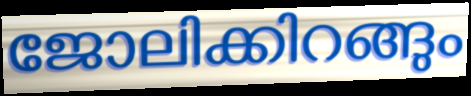
ജോലിക്കിറങ്ങും